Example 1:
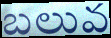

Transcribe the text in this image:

బలువ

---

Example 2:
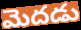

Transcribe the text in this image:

మెదడు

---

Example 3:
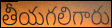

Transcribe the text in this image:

తీయగలిగారు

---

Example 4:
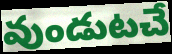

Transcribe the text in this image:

వుండుటచే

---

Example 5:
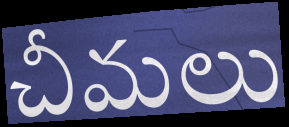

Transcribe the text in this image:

చీమలు